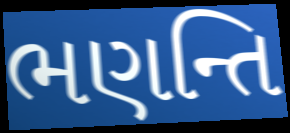
ભણન્તિ